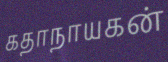
கதாநாயகன்